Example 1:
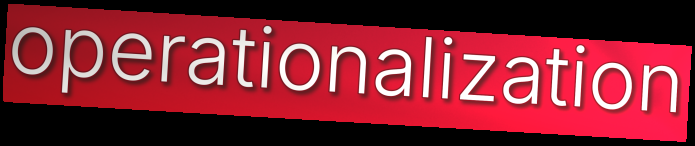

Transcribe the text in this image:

operationalization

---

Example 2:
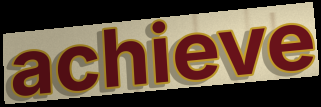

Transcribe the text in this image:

achieve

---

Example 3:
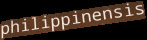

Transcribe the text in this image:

philippinensis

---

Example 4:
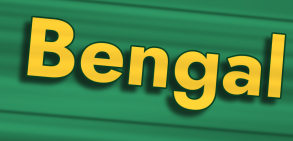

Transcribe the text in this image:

Bengal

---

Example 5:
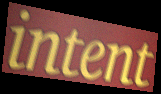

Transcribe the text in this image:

intent